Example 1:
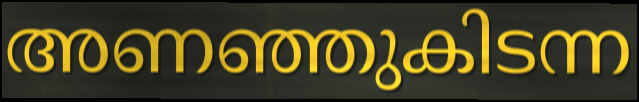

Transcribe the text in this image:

അണഞ്ഞുകിടന്ന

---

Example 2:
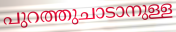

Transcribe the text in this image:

പുറത്തുചാടാനുള്ള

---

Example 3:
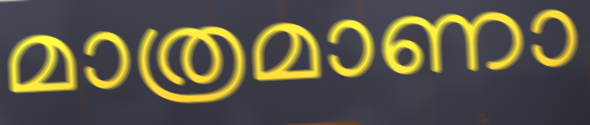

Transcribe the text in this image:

മാത്രമാണാ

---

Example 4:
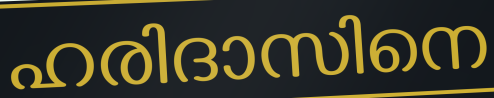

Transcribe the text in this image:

ഹരിദാസിനെ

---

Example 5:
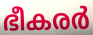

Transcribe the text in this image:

ഭീകരർ